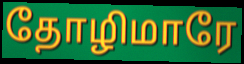
தோழிமாரே